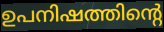
ഉപനിഷത്തിന്റെ